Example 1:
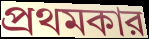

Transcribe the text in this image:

প্রথমকার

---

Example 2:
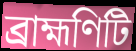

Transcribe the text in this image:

ব্রাহ্মণিটি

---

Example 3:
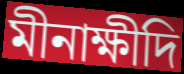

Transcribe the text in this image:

মীনাক্ষীদি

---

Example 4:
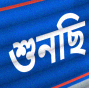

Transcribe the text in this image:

শুনছি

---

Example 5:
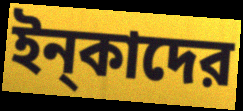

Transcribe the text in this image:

ইন্‌কাদের